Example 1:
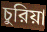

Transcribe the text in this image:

চুরিয়া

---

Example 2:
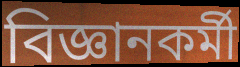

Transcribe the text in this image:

বিজ্ঞানকর্মী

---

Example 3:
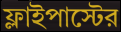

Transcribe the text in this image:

ফ্লাইপাস্টের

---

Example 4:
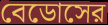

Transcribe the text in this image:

বেডোসের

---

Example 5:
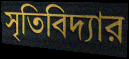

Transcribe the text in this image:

সৃতিবিদ্যার